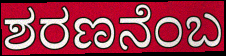
ಶರಣನೆಂಬ